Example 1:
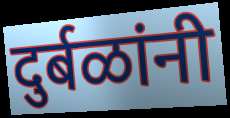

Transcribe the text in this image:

दुर्बळांनी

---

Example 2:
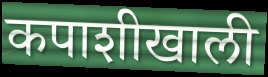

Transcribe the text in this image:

कपाशीखाली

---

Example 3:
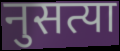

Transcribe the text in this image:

नुसत्या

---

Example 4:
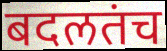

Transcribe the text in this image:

बदलतंच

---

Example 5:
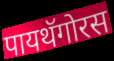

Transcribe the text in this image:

पायथॅगोरस